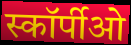
स्कॉर्पीओ